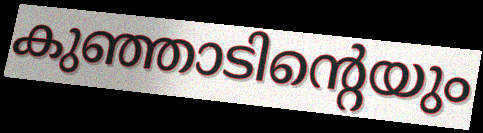
കുഞ്ഞാടിന്റെയും